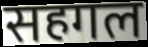
सहगल